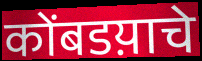
कोंबडय़ाचे